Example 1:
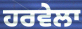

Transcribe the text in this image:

ਹਰਵੇਲਾ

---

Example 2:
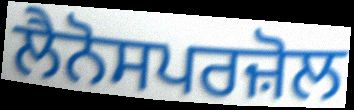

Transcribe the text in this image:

ਲੈਨੋਸਪਰਜ਼ੋਲ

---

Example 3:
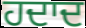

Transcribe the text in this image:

ਹਦਾਦ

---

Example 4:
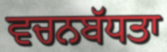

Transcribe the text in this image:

ਵਚਨਬੱਧਤਾ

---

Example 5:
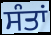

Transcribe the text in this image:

ਸੰਤਾਂ